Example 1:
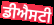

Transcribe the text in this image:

ਡੀਐਸਟੀ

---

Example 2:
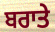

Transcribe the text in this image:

ਬਰਾਤੇ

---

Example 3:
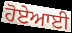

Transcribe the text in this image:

ਹੋਏਆਈ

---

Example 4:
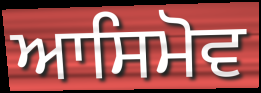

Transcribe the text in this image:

ਆਸਿਮੋਵ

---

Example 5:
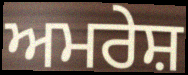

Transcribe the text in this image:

ਅਮਰੇਸ਼